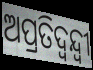
ଅପ୍ରତିଦ୍ବନ୍ଦ୍ବୀ